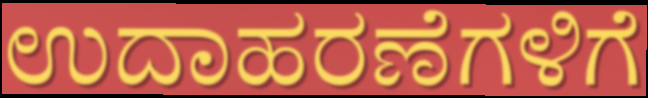
ಉದಾಹರಣೆಗಳಿಗೆ